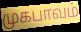
முகபாவம்